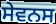
ਸੇਵਨਸ